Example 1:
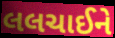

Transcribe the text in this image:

લલચાઈને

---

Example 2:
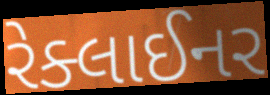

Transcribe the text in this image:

રેક્લાઈનર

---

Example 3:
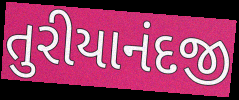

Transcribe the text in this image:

તુરીયાનંદજી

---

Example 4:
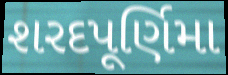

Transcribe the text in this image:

શરદપૂર્ણિમા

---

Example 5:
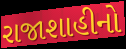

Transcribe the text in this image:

રાજાશાહીનો